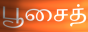
பூசைத்